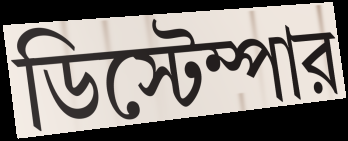
ডিস্টেম্পার